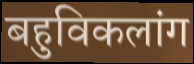
बहुविकलांग